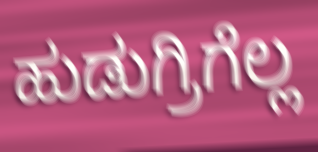
ಹುಡುಗ್ರಿಗೆಲ್ಲ